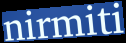
nirmiti